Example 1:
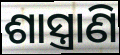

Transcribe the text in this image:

ଶାସ୍ତ୍ରାଣି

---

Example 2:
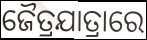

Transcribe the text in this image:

ଜୈତ୍ରଯାତ୍ରାରେ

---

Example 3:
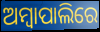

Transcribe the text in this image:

ଅମ୍ବାପାଲିରେ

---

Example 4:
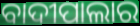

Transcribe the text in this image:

ବାଦୀପାଲାର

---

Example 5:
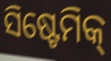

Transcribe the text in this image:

ସିଷ୍ଟେମିକ୍